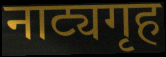
नाट्यगृह